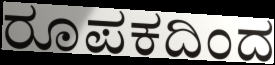
ರೂಪಕದಿಂದ